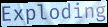
Exploding